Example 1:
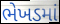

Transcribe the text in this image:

ભેખડમાં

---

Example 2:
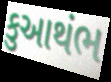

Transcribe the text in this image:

કુઆથંભ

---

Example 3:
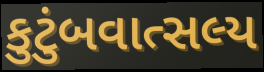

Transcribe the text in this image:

કુટુંબવાત્સલ્ય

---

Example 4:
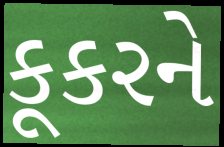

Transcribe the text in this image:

કૂકરને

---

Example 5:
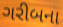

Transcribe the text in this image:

ગરીબના